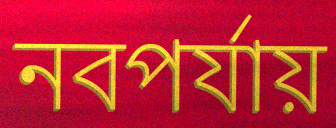
নবপর্যায়